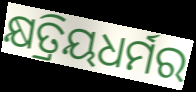
କ୍ଷତ୍ରିୟଧର୍ମର